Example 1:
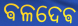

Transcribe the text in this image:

ଵଳଦେଵ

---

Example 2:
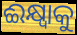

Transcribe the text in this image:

ଈକ୍ଷ୍ୱାକୁ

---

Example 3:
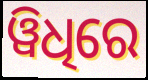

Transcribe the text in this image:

ୱିଧିରେ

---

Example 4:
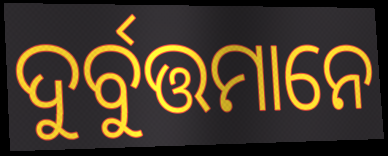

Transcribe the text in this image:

ଦୁର୍ବୁତ୍ତମାନେ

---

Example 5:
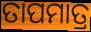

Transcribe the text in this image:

ତାପମାତ୍ର